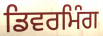
ਡਿਵਰਮਿੰਗ